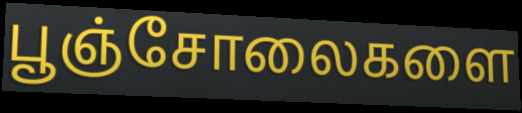
பூஞ்சோலைகளை